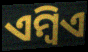
ଏମ୍ବିଏ